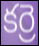
కర్రె